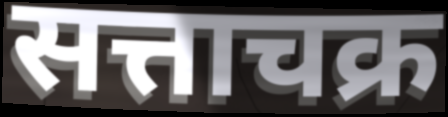
सत्ताचक्र